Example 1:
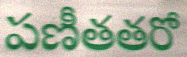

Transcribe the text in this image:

పణీతతరో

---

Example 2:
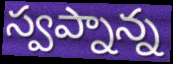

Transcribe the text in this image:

స్వప్నాన్న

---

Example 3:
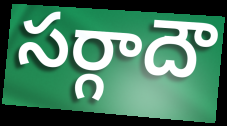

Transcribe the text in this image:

సర్గాదౌ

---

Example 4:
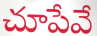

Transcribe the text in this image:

చూపేవే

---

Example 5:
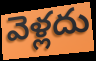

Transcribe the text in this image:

వెళ్లదు